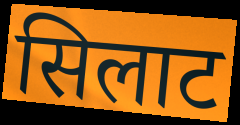
सिलाट